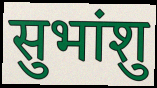
सुभांशु